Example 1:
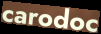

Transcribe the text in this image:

carodoc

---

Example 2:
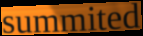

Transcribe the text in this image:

summited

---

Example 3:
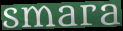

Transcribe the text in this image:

smara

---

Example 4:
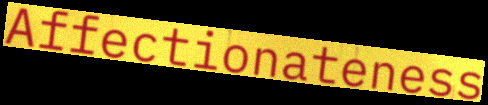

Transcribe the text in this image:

Affectionateness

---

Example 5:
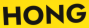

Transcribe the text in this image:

HONG